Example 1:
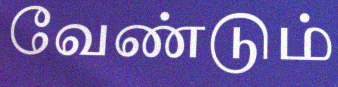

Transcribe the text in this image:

வேண்டும்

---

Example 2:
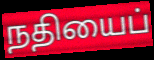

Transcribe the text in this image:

நதியைப்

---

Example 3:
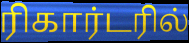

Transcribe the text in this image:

ரிகார்டரில்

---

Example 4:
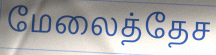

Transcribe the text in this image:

மேலைத்தேச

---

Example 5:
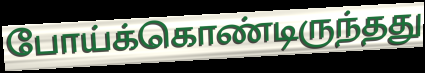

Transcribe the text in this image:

போய்க்கொண்டிருந்தது